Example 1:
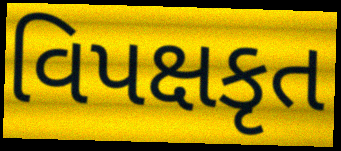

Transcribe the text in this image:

વિપક્ષકૃત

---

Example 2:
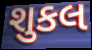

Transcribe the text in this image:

શુકલ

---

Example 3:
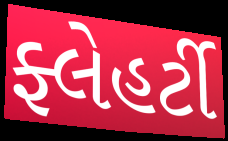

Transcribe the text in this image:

ફ્લેહર્ટી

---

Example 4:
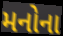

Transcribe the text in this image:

મનોના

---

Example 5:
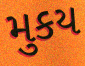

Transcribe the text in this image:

મુકય